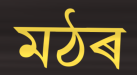
মঠৰ